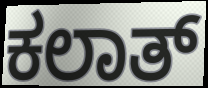
ಕಲಾತ್